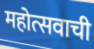
महोत्सवाची